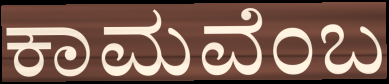
ಕಾಮವೆಂಬ